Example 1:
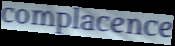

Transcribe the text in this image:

complacence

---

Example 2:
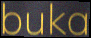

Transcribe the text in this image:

buka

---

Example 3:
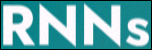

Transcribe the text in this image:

RNNs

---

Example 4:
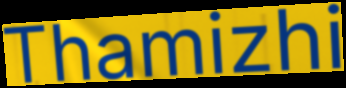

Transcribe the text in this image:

Thamizhi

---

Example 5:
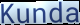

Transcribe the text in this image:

Kunda